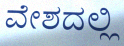
ವೇಶದಲ್ಲಿ